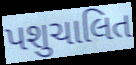
પશુચાલિત